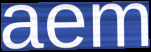
aem